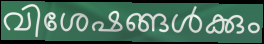
വിശേഷങ്ങൾക്കും